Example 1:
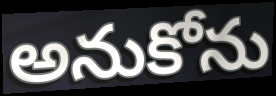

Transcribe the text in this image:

అనుకోను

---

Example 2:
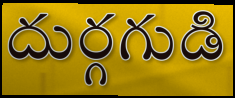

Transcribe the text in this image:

దుర్గగుడి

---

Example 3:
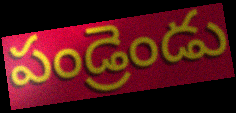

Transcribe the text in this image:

పండ్రెండు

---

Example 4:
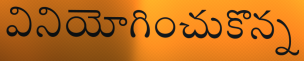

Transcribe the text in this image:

వినియోగించుకొన్న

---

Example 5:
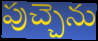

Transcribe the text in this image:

పుచ్చెను